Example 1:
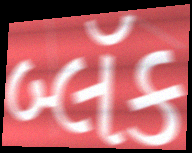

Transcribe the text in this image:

બ્લૅક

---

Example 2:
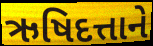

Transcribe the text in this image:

ઋષિદત્તાને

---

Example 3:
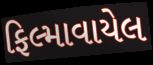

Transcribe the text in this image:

ફિલ્માવાયેલ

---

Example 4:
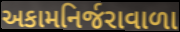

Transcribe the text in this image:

અકામનિર્જરાવાળા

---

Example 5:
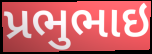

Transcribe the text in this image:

પ્રભુભાઇ